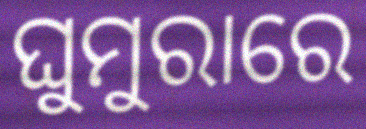
ଘୁମୁରାରେ